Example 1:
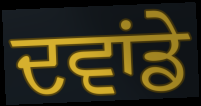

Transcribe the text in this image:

ਦਵਾਂਡੇ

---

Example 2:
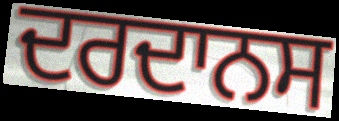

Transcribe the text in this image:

ਦਰਦਾਨਸ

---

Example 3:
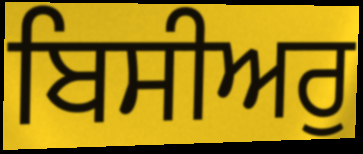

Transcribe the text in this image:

ਬਿਸੀਅਰੁ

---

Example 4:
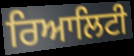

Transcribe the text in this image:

ਰਿਆਲਿਟੀ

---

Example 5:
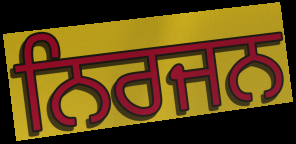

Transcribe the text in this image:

ਨਿਰਜਨ